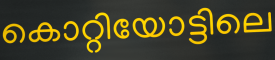
കൊറ്റിയോട്ടിലെ